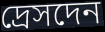
দ্রেসদেন